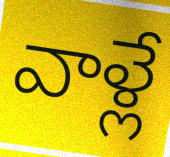
వాళ్లే